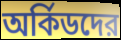
অর্কিডদের